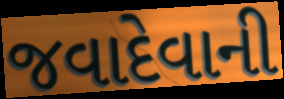
જવાદેવાની